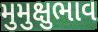
મુમુક્ષુભાવ